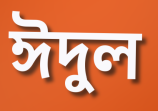
ঈদুল